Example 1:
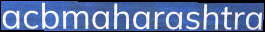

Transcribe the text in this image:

acbmaharashtra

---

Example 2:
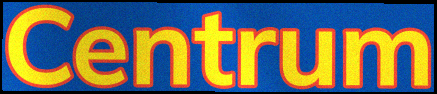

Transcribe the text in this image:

Centrum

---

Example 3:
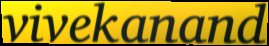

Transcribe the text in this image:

vivekanand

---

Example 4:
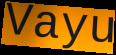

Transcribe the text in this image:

Vayu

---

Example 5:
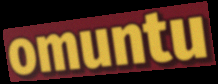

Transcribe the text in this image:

omuntu